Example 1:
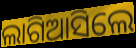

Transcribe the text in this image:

ଲାଗିଆସିଲେ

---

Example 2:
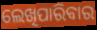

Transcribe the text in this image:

ଲେଖିପାରିବାର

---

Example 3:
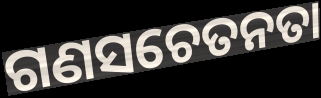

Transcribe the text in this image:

ଗଣସଚେତନତା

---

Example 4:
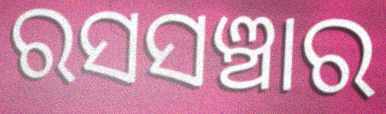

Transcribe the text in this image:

ରସସଞ୍ଚାର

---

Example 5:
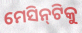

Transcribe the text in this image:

ମେସିନ୍‍ଟିକୁ